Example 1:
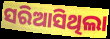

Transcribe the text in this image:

ସରିଆସିଥିଲା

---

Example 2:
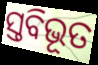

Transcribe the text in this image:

ସ୍ତବିଭୂତ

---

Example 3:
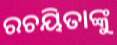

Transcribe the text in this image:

ରଚୟିତାଙ୍କୁ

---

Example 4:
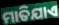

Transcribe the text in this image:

ମାତିଯାଏ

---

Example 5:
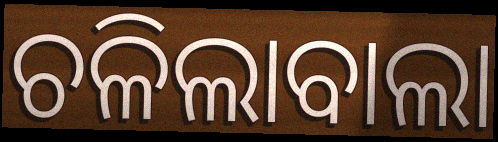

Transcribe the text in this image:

ଚଳିଲାବାଲା